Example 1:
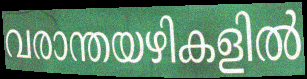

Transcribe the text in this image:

വരാന്തയഴികളിൽ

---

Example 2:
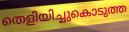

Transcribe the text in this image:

തെളിയിച്ചുകൊടുത്ത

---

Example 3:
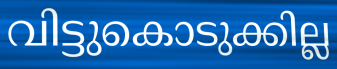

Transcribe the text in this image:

വിട്ടുകൊടുക്കില്ല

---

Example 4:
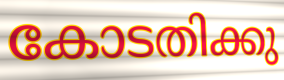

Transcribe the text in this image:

കോടതിക്കു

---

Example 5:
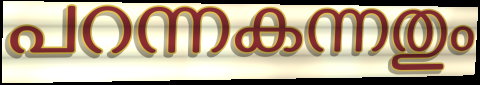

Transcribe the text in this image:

പറന്നകന്നതും